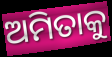
ଅମିତାକୁ